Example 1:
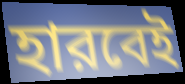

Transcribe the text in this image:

হারবেই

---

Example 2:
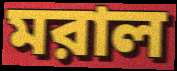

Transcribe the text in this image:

মরাল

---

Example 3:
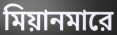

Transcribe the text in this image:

মিয়ানমারে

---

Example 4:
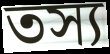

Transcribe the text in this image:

তস্য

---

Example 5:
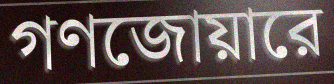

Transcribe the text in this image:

গণজোয়ারে